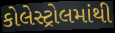
કોલેસ્ટ્રોલમાંથી